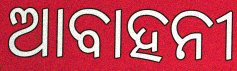
ଆବାହନୀ